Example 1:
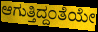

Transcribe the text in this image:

ಆಗುತ್ತಿದ್ದಂತೆಯೇ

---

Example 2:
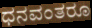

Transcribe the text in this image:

ಧನವಂತರೂ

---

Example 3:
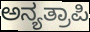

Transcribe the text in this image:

ಅನ್ಯತ್ರಾಪಿ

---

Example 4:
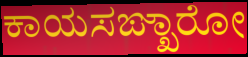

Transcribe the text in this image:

ಕಾಯಸಙ್ಖಾರೋ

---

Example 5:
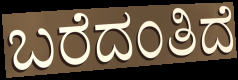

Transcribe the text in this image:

ಬರೆದಂತಿದೆ